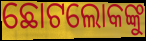
ଛୋଟଲୋକଙ୍କୁ